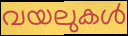
വയലുകൾ